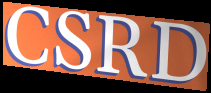
CSRD